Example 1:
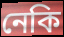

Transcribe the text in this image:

নেকি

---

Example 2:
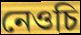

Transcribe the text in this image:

নেওচি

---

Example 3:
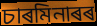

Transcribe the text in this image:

চাৰমিনাৰৰ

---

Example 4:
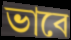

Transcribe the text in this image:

ভাবে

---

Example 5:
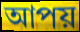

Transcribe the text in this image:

আপয়